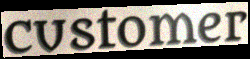
customer